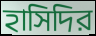
হাসিদির